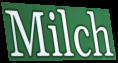
Milch